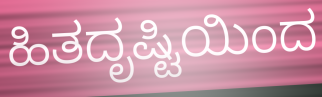
ಹಿತದೃಷ್ಟಿಯಿಂದ